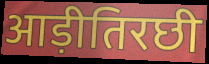
आड़ीतिरछी